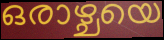
ഒരാഴ്ചയെ